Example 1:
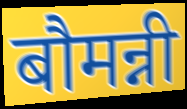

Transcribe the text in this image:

बौमन्नी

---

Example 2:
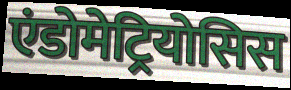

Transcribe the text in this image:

एंडोमेट्रियोसिस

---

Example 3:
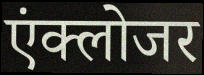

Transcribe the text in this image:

एंक्लोजर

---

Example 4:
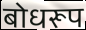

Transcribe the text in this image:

बोधरूप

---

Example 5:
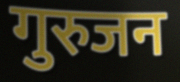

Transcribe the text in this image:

गुरुजन